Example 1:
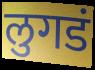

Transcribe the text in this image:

लुगडं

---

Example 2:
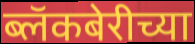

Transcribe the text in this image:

ब्लॅकबेरीच्या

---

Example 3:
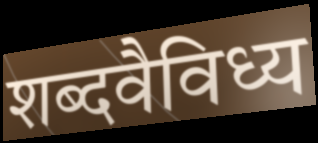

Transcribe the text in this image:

शब्दवैविध्य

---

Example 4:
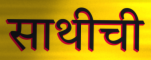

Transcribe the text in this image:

साथीची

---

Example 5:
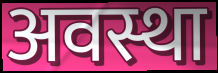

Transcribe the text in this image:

अवस्था